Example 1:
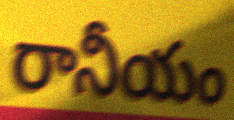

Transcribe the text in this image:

రానీయం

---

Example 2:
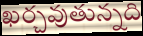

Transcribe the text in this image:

ఖర్చవుతున్నది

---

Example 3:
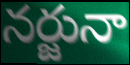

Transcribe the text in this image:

నర్జునా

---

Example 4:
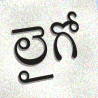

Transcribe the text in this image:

లైగో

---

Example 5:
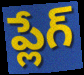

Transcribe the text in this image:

ప్లేగ్